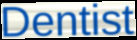
Dentist